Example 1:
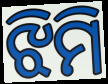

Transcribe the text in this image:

ଝିମି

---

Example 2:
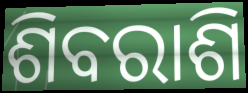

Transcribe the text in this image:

ଶିବରାଶି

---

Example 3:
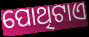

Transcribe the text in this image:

ପୋଥିଟାଏ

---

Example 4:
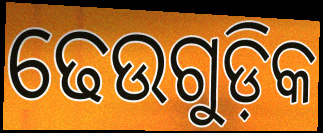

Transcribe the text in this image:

ଢେଉଗୁଡ଼ିକ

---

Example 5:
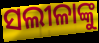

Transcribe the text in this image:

ସଲୀଳାଙ୍କୁ